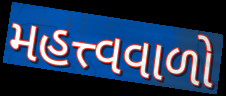
મહત્ત્વવાળો